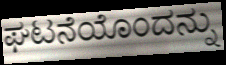
ಘಟನೆಯೊಂದನ್ನು